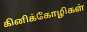
கினிக்கோழிகள்